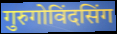
गुरुगोविंदसिंग